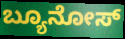
ಬ್ಯೂನೋಸ್